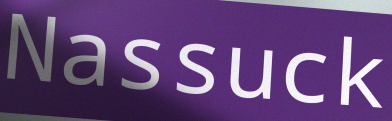
Nassuck